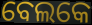
ବେଲକେ